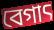
বেগাৎ